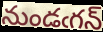
నుండఁగన్